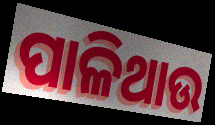
ପାଳିଥାଉ